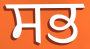
ਸਭ